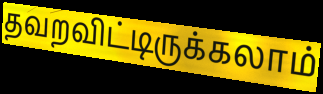
தவறவிட்டிருக்கலாம்